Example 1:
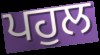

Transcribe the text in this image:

ਪਹੁਲ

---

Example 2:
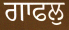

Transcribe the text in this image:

ਗਾਫਲੁ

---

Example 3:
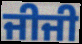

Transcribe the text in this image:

ਜੀਜੀ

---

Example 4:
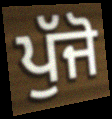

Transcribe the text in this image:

ਪੁੱਜੋ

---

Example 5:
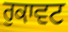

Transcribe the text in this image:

ਰੁਕਾਵਟ